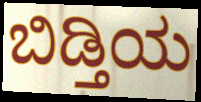
ಬಿಡ್ತಿಯ